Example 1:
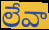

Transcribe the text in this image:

లేవా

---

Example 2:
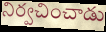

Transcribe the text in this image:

నిర్వచించాడు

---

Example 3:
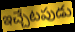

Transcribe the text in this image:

ఇచ్చేటపుడు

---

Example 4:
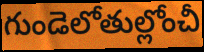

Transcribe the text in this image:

గుండెలోతుల్లోంచీ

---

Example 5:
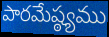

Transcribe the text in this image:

పారమేష్ఠ్యము